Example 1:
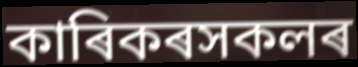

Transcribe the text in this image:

কাৰিকৰসকলৰ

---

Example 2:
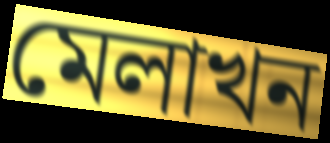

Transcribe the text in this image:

মেলাখন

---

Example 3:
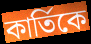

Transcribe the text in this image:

কাৰ্তিকে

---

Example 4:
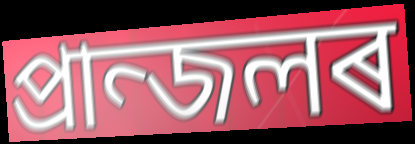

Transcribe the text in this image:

প্ৰান্জলৰ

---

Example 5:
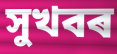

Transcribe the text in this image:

সুখবৰ